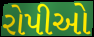
રોપીઓ